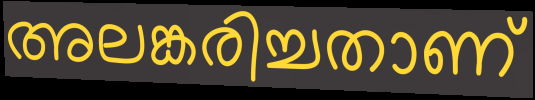
അലങ്കരിച്ചതാണ്